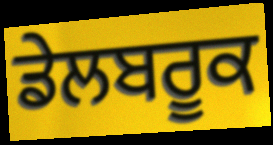
ਡੇਲਬਰੂਕ